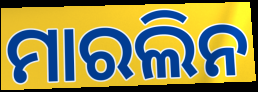
ମାରଲିନ